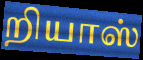
றியாஸ்